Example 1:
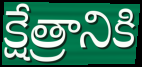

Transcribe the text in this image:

క్షేత్రానికి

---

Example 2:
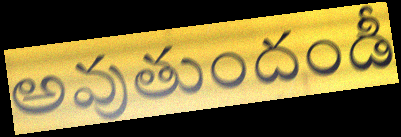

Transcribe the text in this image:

అవుతుందండీ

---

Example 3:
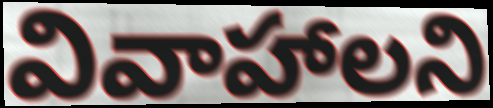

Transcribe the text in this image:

వివాహాలని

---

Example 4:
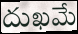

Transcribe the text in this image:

దుఖమే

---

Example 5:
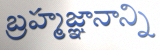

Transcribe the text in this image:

బ్రహ్మజ్ఞానాన్ని